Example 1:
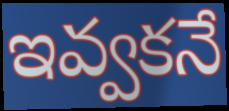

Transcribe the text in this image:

ఇవ్వకనే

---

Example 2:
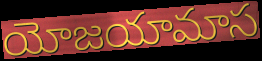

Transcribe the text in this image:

యోజయామాస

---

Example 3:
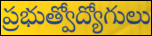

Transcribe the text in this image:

ప్రభుత్వోద్యోగులు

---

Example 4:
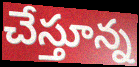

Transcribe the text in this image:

చేస్తూన్న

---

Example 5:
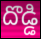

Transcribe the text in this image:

దొడ్డి